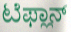
ಟೆಫ್ಲಾನ್